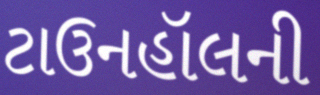
ટાઉનહૉલની